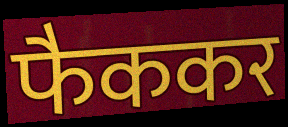
फैककर